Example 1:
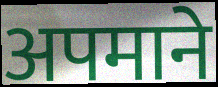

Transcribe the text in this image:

अपमाने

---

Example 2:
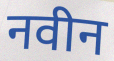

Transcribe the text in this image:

नवीन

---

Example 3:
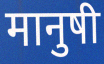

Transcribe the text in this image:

मानुषी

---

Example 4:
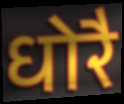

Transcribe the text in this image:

धोरै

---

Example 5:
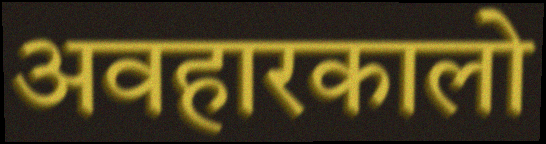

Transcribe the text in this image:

अवहारकालो